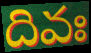
దివః